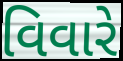
વિવારે